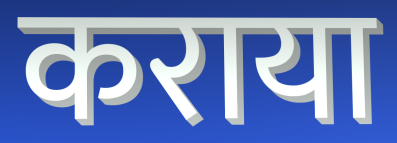
कराया